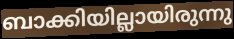
ബാക്കിയില്ലായിരുന്നു